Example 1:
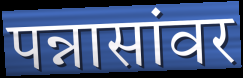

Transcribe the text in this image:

पन्नासांवर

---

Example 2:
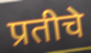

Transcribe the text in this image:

प्रतीचे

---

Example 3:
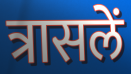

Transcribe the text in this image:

त्रासलें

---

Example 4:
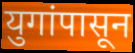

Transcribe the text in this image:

युगांपासून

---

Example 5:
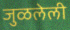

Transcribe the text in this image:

जुळलेली